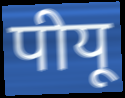
पीयू